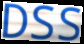
DSS